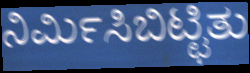
ನಿರ್ಮಿಸಿಬಿಟ್ಟಿತು